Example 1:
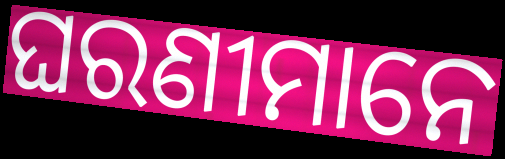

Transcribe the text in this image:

ଘରଣୀମାନେ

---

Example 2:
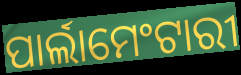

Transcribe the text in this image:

ପାର୍ଲାମେଂଟାରୀ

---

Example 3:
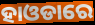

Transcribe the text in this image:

ହାଓଡାରେ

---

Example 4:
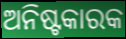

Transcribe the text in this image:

ଅନିଷ୍ଟକାରକ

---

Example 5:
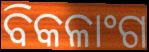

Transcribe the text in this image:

ବିକଳାଂଗ